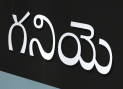
గనియె